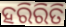
ହରିରିତି